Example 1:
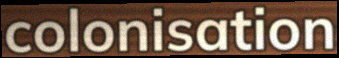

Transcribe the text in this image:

colonisation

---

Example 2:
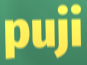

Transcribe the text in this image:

puji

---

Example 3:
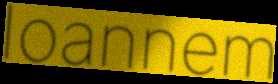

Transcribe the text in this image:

Ioannem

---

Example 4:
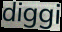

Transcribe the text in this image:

diggi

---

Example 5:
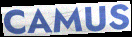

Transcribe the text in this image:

CAMUS